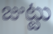
జుట్టు